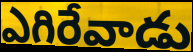
ఎగిరేవాడు